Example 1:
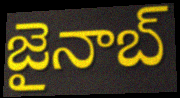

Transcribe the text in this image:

జైనాబ్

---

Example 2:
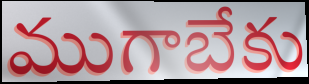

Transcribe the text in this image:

ముగాబేకు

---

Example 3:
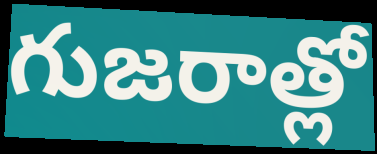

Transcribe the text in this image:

గుజరాత్లో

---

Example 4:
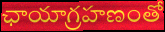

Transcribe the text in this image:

ఛాయాగ్రహణంతో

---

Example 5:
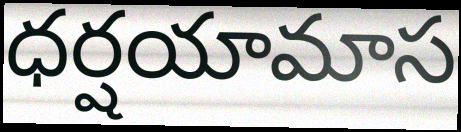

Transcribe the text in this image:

ధర్షయామాస